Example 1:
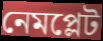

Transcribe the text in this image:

নেমপ্লেট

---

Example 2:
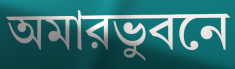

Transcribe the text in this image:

অমারভুবনে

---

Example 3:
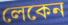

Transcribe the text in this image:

লেকেন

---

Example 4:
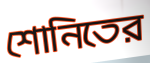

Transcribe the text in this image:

শোনিতের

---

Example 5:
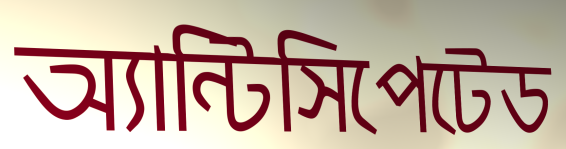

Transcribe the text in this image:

অ্যান্টিসিপেটেড